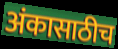
अंकासाठीच